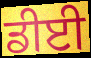
ਡੀਈ